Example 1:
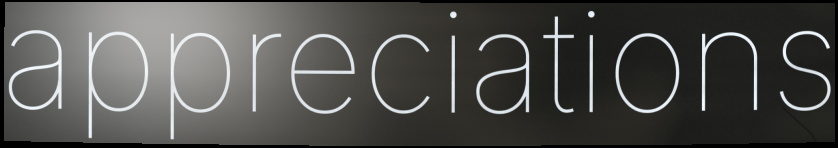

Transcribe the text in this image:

appreciations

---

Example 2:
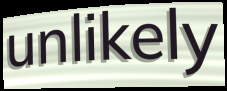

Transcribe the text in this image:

unlikely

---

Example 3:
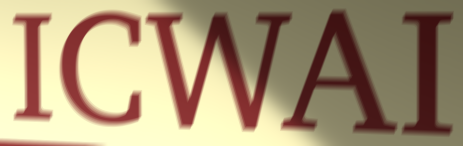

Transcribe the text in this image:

ICWAI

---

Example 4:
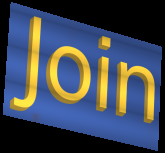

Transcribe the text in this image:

Join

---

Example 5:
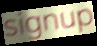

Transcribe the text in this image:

signup